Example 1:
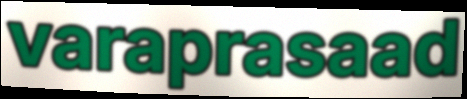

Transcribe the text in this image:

varaprasaad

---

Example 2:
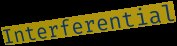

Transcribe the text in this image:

Interferential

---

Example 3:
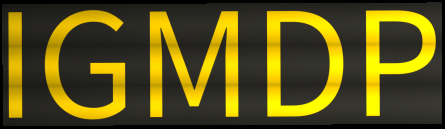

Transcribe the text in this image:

IGMDP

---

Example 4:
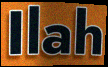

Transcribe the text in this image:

Ilah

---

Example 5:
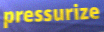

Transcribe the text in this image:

pressurize